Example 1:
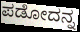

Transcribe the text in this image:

ಪಡೋದನ್ನ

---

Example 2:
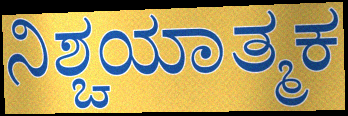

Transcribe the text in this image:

ನಿಶ್ಚಯಾತ್ಮಕ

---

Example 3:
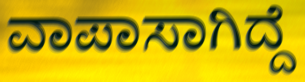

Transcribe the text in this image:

ವಾಪಾಸಾಗಿದ್ದೆ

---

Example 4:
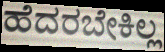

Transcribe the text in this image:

ಹೆದರಬೇಕಿಲ್ಲ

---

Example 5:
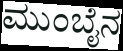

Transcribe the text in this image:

ಮುಂಬೈನ